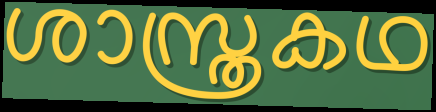
ശാസ്ത്രകഥ